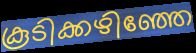
കൂടിക്കഴിഞ്ഞേ